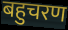
बहुचरण